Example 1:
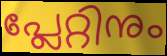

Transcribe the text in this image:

പ്ലേറ്റിനും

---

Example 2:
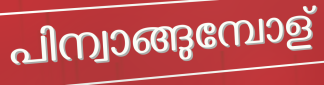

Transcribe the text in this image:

പിന്വാങ്ങുമ്പോള്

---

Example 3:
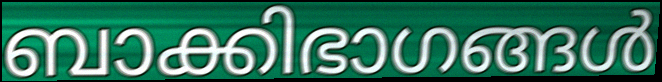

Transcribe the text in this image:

ബാക്കിഭാഗങ്ങൾ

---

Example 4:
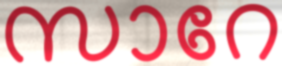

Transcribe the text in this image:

സാറേ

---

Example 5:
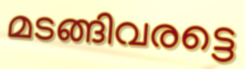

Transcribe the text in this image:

മടങ്ങിവരട്ടെ